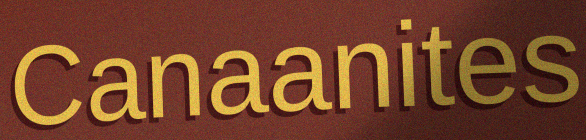
Canaanites